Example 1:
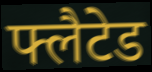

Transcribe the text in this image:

फ्लैटेड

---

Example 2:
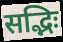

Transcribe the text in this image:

सद्भिः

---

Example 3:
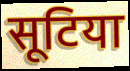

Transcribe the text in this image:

सूटिया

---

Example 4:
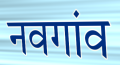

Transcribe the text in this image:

नवगांव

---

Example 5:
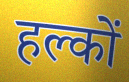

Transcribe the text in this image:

हल्कों